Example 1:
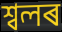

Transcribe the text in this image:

শ্বলৰ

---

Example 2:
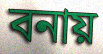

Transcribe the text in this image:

বনায়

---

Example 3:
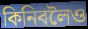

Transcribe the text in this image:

কিনিবলৈও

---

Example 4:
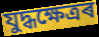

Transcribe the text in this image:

যুদ্ধক্ষেত্ৰৰ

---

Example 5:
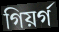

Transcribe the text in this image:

গিয়ৰ্গ